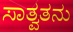
ಸಾತ್ವತನು